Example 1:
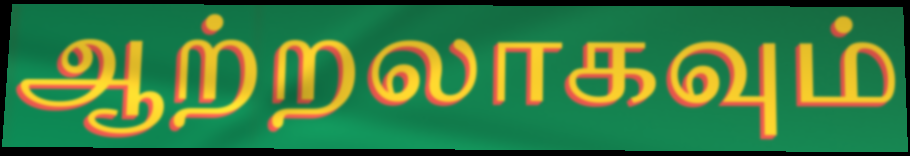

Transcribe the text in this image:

ஆற்றலாகவும்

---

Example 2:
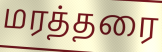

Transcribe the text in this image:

மரத்தரை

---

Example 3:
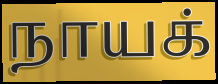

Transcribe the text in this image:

நாயக்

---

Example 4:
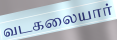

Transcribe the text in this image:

வடகலையார்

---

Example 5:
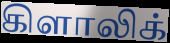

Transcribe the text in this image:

கிளாலிக்